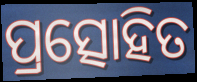
ପ୍ରତ୍ସୋହିତ